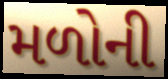
મળોની